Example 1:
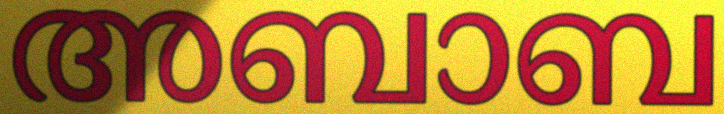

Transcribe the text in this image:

അബാബ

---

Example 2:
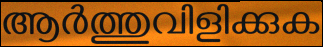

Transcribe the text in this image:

ആർത്തുവിളിക്കുക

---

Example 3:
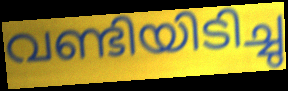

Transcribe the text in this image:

വണ്ടിയിടിച്ചു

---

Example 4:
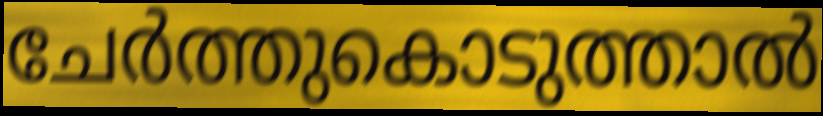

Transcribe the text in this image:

ചേർത്തുകൊടുത്താൽ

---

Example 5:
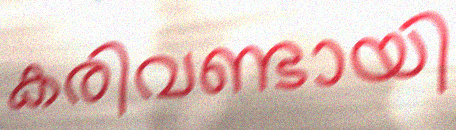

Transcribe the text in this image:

കരിവണ്ടായി